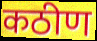
कठीण